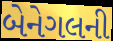
બેનેગલની